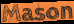
Mason